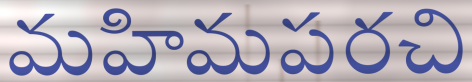
మహిమపరచి